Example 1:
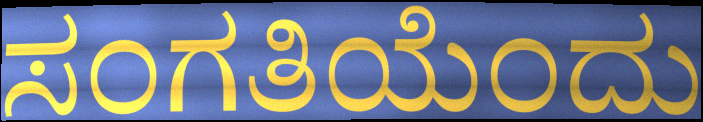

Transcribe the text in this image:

ಸಂಗತಿಯೆಂದು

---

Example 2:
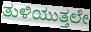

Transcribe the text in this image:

ತುಳಿಯುತ್ತಲೇ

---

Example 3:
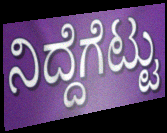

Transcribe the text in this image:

ನಿದ್ದೆಗೆಟ್ಟು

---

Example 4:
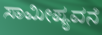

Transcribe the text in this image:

ಸಾಮೀಪ್ಯವನೆ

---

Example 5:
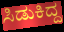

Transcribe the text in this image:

ಸಿಡುಕಿದ್ದ